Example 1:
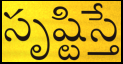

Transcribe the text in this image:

సృష్టిస్తే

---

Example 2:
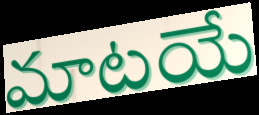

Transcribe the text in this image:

మాటయే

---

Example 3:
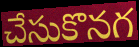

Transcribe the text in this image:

చేసుకొనగ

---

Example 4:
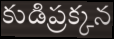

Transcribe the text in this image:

కుడిప్రక్కన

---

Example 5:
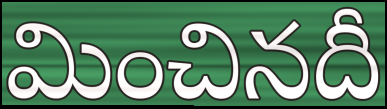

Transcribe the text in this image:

మించినదీ